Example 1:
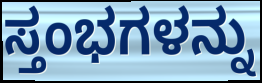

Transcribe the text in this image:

ಸ್ತಂಭಗಳನ್ನು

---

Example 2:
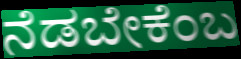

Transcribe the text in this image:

ನೆಡಬೇಕೆಂಬ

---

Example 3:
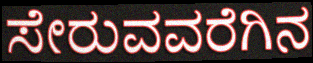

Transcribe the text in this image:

ಸೇರುವವರೆಗಿನ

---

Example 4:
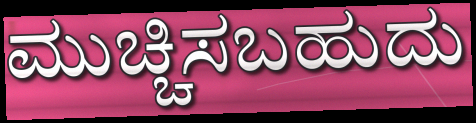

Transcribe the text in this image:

ಮುಚ್ಚಿಸಬಹುದು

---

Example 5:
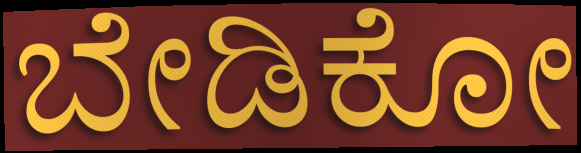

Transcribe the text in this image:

ಬೇಡಿಕೋ